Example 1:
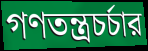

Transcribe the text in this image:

গণতন্ত্রচর্চার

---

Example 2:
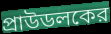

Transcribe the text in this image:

প্রাউডলকের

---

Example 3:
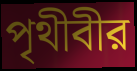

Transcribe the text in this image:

পৃথীবীর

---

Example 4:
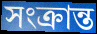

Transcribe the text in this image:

সংক্রান্ত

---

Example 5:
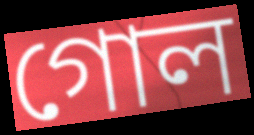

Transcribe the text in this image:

গোল